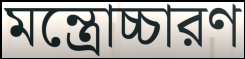
মন্ত্রোচ্চারণ